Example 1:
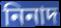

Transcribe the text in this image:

নিনাদ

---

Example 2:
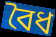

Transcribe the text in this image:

বৈধ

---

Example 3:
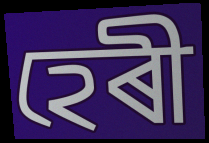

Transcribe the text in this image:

হেৰী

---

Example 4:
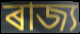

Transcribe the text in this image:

ৰাজ্য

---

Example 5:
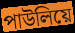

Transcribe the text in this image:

পাউলিয়ে